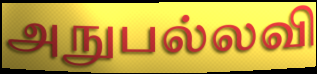
அநுபல்லவி